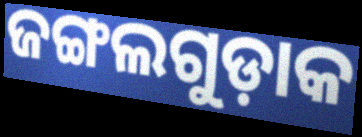
ଜଙ୍ଗଲଗୁଡ଼ାକ